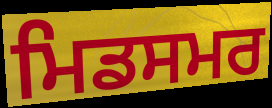
ਮਿਡਸਮਰ